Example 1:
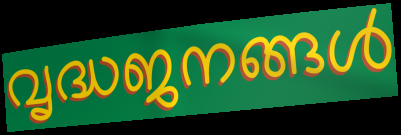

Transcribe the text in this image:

വൃദ്ധജനങ്ങൾ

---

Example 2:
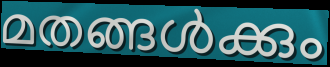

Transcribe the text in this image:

മതങ്ങൾക്കും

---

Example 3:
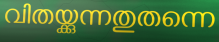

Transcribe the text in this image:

വിതയ്ക്കുന്നതുതന്നെ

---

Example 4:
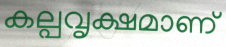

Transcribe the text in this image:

കല്പവൃക്ഷമാണ്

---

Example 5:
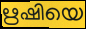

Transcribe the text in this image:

ഋഷിയെ